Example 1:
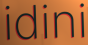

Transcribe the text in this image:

idini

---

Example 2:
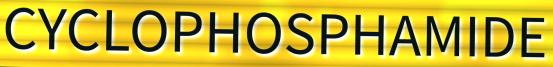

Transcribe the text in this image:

CYCLOPHOSPHAMIDE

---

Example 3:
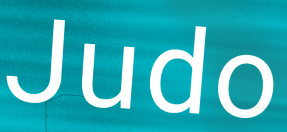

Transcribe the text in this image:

Judo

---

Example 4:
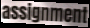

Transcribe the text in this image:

assignment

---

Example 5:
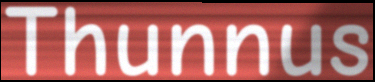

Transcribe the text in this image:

Thunnus